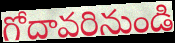
గోదావరినుండి